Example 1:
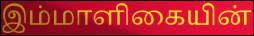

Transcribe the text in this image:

இம்மாளிகையின்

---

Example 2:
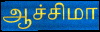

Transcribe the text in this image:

ஆச்சிமா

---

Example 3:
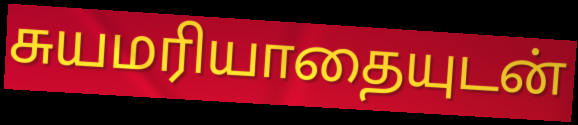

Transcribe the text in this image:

சுயமரியாதையுடன்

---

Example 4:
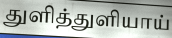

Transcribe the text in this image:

துளித்துளியாய்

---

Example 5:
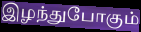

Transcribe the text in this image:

இழந்துபோகும்